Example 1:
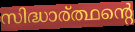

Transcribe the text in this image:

സിദ്ധാര്ത്ഥന്റെ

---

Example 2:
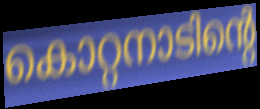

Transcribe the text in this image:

കൊറ്റനാടിന്റെ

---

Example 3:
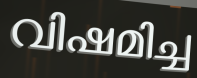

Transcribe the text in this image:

വിഷമിച്ച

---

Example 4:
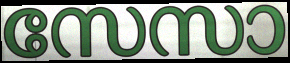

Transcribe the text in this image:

സേസാ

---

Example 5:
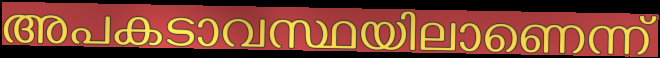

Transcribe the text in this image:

അപകടാവസ്ഥയിലാണെന്ന്